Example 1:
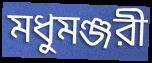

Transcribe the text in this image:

মধুমঞ্জরী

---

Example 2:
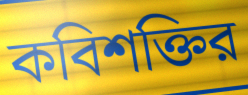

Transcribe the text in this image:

কবিশক্তির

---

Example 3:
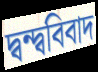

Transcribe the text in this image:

দ্বন্দ্ববিবাদ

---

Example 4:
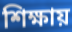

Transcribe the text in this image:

শিক্ষায়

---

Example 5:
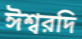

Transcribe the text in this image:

ঈশ্বরদি